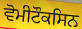
ਵੋਮੀਟੌਕਸਿਨ